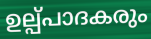
ഉല്പ്പാദകരും